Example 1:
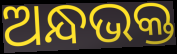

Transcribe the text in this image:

ଅନ୍ଧଭକ୍ତ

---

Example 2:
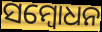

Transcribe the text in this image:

ସମ୍ବୋଧନ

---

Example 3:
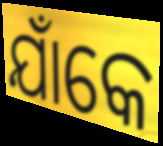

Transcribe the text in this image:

ଯାଁକେ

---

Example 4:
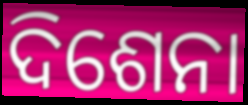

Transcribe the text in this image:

ଦିଶେନା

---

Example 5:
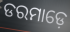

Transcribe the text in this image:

ଡରମାଡ଼େ